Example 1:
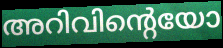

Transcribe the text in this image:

അറിവിന്റെയോ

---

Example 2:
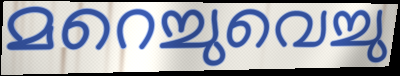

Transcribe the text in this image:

മറെച്ചുവെച്ചു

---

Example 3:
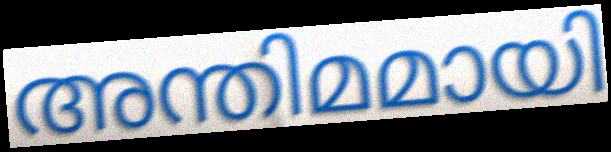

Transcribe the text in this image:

അന്തിമമായി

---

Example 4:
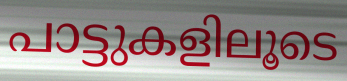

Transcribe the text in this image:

പാട്ടുകളിലൂടെ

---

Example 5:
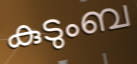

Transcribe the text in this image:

കുടുംബ